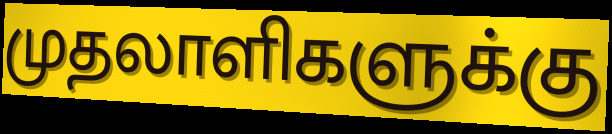
முதலாளிகளுக்கு